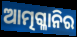
ଆତ୍ମଗ୍ଳାନିର